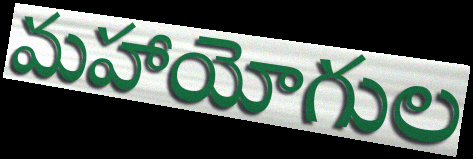
మహాయోగుల